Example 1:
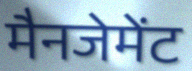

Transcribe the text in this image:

मैनजेमेंट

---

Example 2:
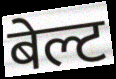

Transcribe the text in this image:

बेल्‍ट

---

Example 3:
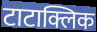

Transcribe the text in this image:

टाटाक्लिक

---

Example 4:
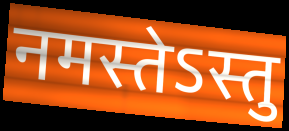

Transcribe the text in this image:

नमस्तेऽस्तु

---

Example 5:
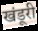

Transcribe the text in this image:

खंडूरी